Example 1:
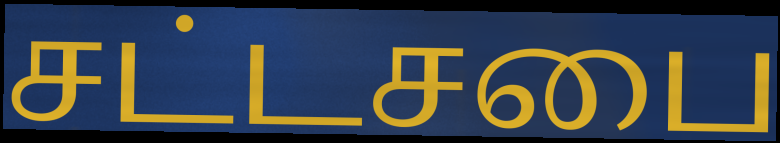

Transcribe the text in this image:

சட்டசபை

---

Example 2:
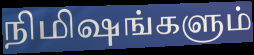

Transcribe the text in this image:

நிமிஷங்களும்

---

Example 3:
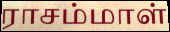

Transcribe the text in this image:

ராசம்மாள்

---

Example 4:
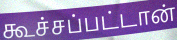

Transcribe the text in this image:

கூச்சப்பட்டான்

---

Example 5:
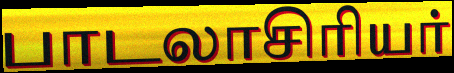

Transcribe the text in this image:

பாடலாசிரியர்